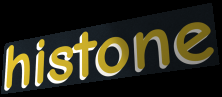
histone